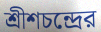
শ্রীশচন্দ্রের